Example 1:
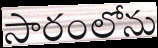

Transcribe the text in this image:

సారంలోను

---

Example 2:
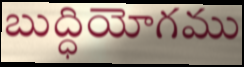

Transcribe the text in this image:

బుద్ధియోగము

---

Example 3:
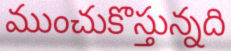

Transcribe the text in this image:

ముంచుకొస్తున్నది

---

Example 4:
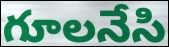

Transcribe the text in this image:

గూలనేసి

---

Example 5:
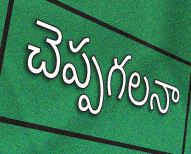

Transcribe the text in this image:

చెప్పగలనా